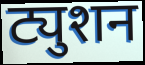
ट्युशन